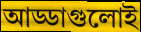
আড্ডাগুলোই